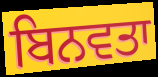
ਬਿਨਵਤਾ